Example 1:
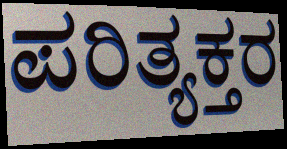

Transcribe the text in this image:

ಪರಿತ್ಯಕ್ತರ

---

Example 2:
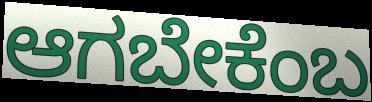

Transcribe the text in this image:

ಆಗಬೇಕೆಂಬ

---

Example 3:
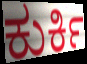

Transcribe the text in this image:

ಕುರ್ಕಿ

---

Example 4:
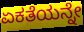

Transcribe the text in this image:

ಏಕತೆಯನ್ನೇ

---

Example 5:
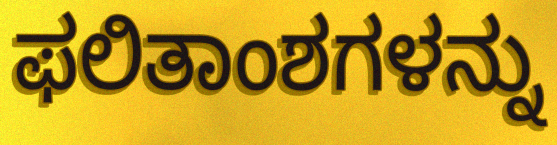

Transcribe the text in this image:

ಫಲಿತಾಂಶಗಳನ್ನು